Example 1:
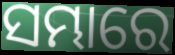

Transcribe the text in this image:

ସମ୍ଭାରେ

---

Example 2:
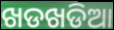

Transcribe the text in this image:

ଖଡଖଡିଆ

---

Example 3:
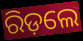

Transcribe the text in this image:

ରିଡ଼ଲେ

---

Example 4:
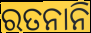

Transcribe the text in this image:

ରତନାନି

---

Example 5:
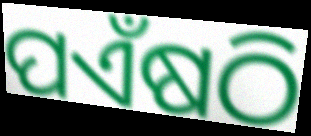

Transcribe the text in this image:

ପଏଁଷଠି